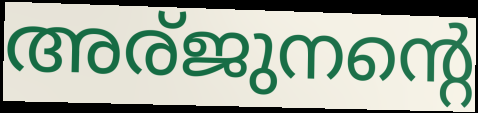
അര്ജുനന്റെ